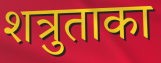
शत्रुताका